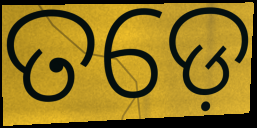
ତଡ଼େ